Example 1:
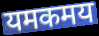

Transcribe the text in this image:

यमकमय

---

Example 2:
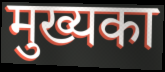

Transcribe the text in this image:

मुख्यका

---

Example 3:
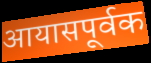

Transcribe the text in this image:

आयासपूर्वक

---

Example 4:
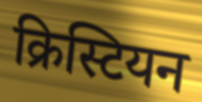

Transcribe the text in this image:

क्रिस्टियन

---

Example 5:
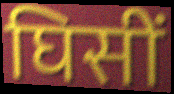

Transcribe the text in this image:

घिसीं